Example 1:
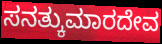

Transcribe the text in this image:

ಸನತ್ಕುಮಾರದೇವ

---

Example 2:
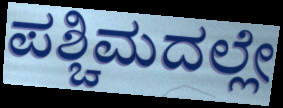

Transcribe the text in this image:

ಪಶ್ಚಿಮದಲ್ಲೇ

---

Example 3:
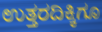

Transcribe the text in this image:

ಉತ್ತರದಿಕ್ಕಿಗೂ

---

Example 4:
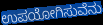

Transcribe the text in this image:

ಉಪಯೋಗಿಸುವೆನು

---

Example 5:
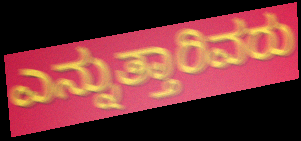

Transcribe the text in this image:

ಎನ್ನುತ್ತಾರಿವರು